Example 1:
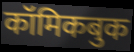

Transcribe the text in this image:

कॉमिकबुक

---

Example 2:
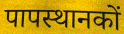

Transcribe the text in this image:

पापस्थानकों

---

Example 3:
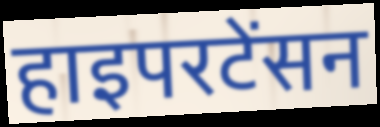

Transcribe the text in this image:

हाइपरटेंसन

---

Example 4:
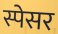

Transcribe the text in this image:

स्पेसर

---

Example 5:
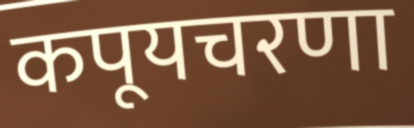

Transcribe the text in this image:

कपूयचरणा